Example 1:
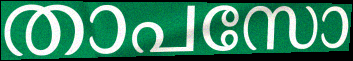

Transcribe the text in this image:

താപസോ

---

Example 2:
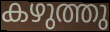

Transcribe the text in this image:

കഴുത്തു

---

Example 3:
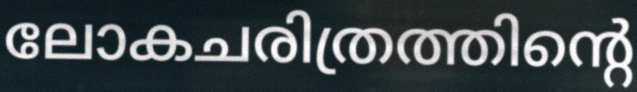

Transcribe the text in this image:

ലോകചരിത്രത്തിന്റെ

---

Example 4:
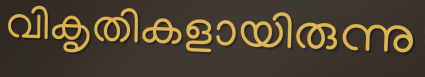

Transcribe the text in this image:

വികൃതികളായിരുന്നു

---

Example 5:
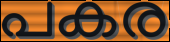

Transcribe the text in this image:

പകര